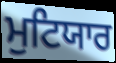
ਮੁਟਿਯਾਰ